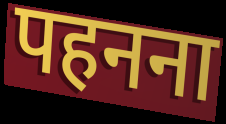
पहनना